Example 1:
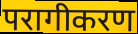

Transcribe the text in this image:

परागीकरण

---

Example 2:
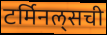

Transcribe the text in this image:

टर्मिनल्सची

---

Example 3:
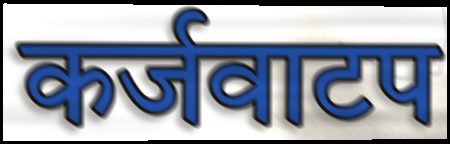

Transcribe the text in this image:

कर्जवाटप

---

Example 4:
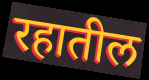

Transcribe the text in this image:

रहातील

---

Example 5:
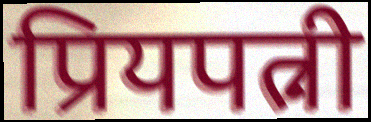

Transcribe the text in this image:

प्रियपत्नी